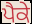
ਪੈਕੇ